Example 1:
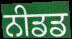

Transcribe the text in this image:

ਨੀਡਡ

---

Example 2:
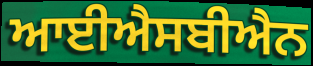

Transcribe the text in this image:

ਆਈਐਸਬੀਐਨ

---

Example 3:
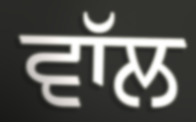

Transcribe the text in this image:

ਵਾੱਲ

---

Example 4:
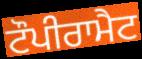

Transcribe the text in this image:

ਟੌਪੀਰਾਮੈਟ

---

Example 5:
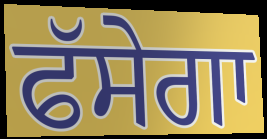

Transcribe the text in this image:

ਫੱਸੇਗਾ